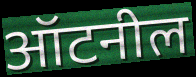
ऑटनील